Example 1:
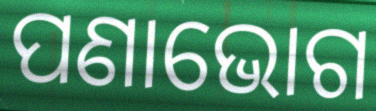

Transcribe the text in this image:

ପଣାଭୋଗ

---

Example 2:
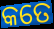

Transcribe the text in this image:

କତେ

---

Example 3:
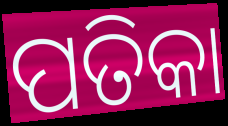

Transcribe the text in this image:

ପତିକା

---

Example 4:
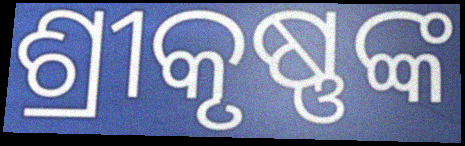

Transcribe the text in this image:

ଶ୍ରୀକୃଷ୍ଣଙ୍କ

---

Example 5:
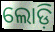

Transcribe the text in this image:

ଲୋଡ଼ି